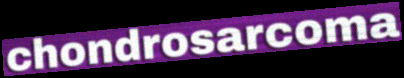
chondrosarcoma